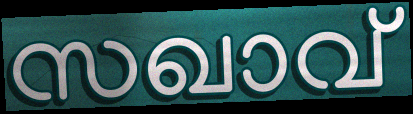
സഖാവ്